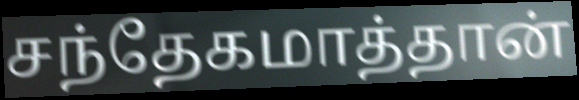
சந்தேகமாத்தான்